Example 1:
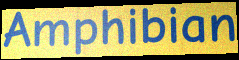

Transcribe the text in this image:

Amphibian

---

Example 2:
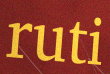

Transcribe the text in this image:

ruti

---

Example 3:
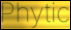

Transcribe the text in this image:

Phytic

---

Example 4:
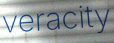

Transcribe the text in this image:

veracity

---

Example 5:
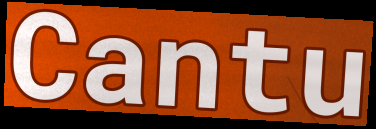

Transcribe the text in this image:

Cantu